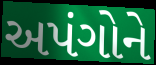
અપંગોને